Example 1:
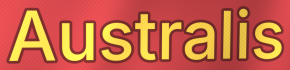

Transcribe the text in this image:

Australis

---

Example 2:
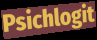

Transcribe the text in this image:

Psichlogit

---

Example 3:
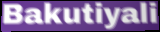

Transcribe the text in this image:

Bakutiyali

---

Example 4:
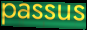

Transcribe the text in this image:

passus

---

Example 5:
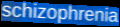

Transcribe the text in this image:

schizophrenia